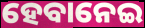
ହେବାନେଇ